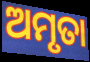
ଅମୃତା